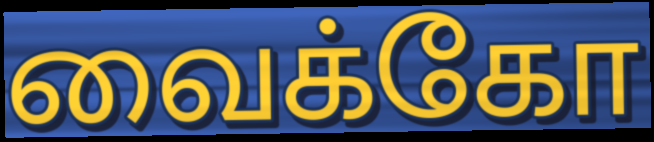
வைக்கோ